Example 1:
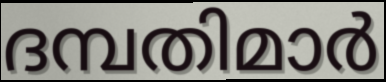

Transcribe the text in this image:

ദമ്പതിമാർ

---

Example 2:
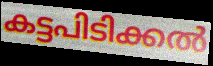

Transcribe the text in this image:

കട്ടപിടിക്കൽ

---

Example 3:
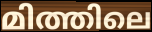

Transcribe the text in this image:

മിത്തിലെ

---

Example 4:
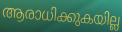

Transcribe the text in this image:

ആരാധിക്കുകയില്ല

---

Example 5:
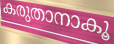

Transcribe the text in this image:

കരുതാനാകൂ